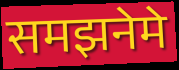
समझनेमे